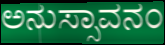
ಅನುಸ್ಸಾವನಂ